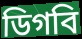
ডিগবি